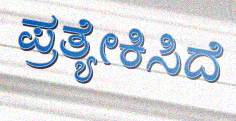
ಪ್ರತ್ಯೇಕಿಸಿದೆ